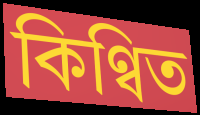
কিণ্বিত